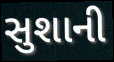
સુશાની